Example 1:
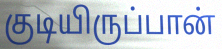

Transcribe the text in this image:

குடியிருப்பான்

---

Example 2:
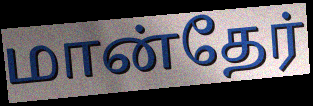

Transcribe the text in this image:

மான்தேர்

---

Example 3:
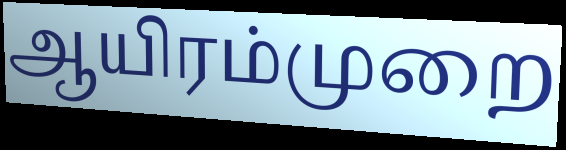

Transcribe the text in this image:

ஆயிரம்முறை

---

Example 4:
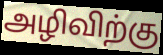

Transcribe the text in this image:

அழிவிற்கு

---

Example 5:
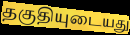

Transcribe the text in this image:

தகுதியுடையது